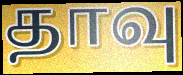
தாவு